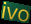
ivo